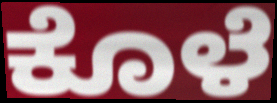
ಕೊಳೆ